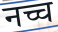
नच्च